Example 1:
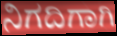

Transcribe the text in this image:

ನಿಗದಿಗಾಗಿ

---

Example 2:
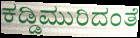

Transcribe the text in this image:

ಕಡ್ಡಿಮುರಿದಂತೆ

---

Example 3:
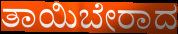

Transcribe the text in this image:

ತಾಯಿಬೇರಾದ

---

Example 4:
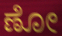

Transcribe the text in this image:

ಣೋ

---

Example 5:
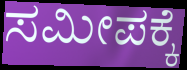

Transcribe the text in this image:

ಸಮೀಪಕ್ಕೆ